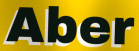
Aber